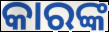
କାରଙ୍କ